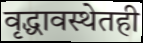
वृद्धावस्थेतही